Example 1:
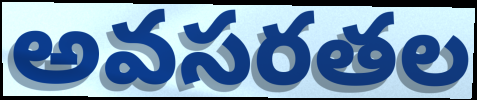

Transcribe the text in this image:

అవసరతల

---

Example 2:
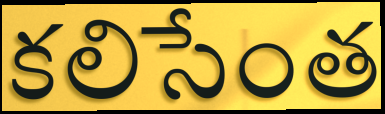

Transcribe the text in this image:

కలిసేంత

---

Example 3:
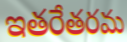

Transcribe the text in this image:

ఇతరేతరమ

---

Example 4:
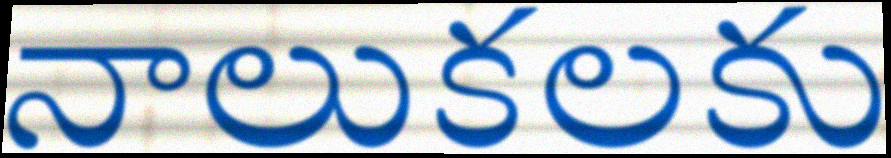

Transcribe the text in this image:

నాలుకలకు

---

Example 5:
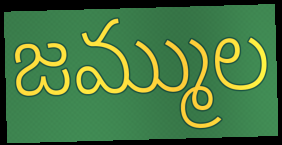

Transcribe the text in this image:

జమ్ముల